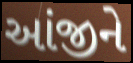
આંજીને